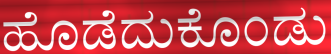
ಹೊಡೆದುಕೊಂಡು